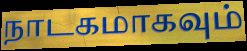
நாடகமாகவும்